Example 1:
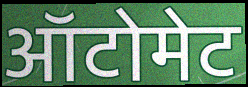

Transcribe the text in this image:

ऑटोमेट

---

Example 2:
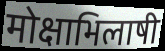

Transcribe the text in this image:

मोक्षाभिलाषी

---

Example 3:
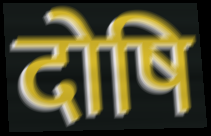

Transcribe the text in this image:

दोषि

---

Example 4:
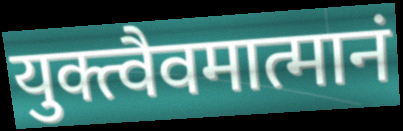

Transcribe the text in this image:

युक्त्वैवमात्मानं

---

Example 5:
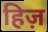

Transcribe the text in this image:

हिज़